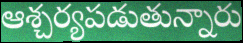
ఆశ్చర్యపడుతున్నారు